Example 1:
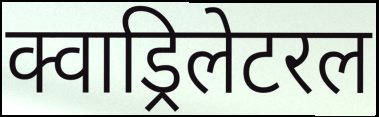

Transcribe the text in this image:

क्वाड्रिलेटरल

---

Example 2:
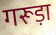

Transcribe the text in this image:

गरूड़ा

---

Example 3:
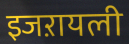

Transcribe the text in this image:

इजऱायली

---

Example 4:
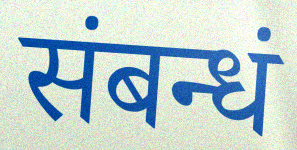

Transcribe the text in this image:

संबन्धं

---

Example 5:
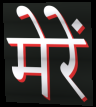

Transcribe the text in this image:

मेरें